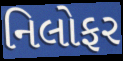
નિલોફર